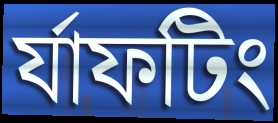
র্যাফটিং